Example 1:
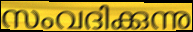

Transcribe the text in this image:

സംവദിക്കുന്നു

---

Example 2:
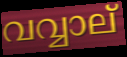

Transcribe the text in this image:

വവ്വാല്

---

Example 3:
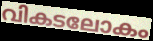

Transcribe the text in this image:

വികടലോകം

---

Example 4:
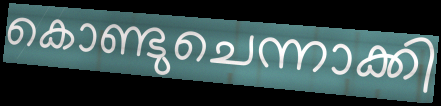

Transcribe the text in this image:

കൊണ്ടുചെന്നാക്കി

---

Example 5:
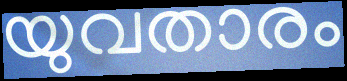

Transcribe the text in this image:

യുവതാരം